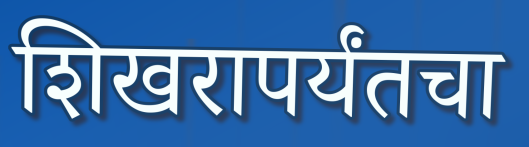
शिखरापर्यंतचा